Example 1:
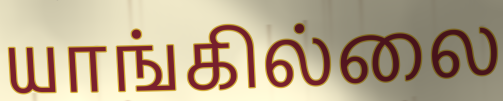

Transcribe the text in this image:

யாங்கில்லை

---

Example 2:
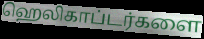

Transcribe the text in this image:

ஹெலிகாப்டர்களை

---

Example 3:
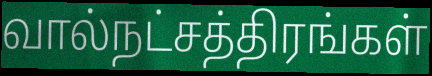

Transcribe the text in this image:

வால்நட்சத்திரங்கள்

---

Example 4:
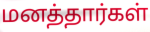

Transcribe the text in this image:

மனத்தார்கள்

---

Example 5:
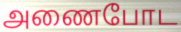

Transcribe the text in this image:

அணைபோட